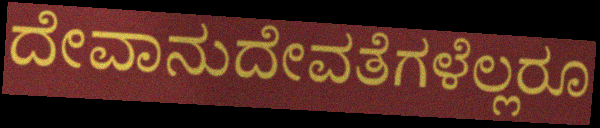
ದೇವಾನುದೇವತೆಗಳೆಲ್ಲರೂ